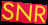
SNR